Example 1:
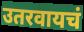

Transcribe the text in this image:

उतरवायचं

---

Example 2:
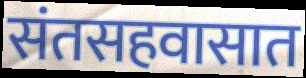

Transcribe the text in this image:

संतसहवासात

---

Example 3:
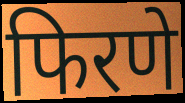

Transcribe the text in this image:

फिरणे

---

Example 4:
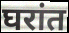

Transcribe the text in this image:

घरांत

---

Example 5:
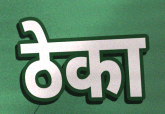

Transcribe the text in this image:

ठेका